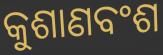
କୁଶାଣବଂଶ